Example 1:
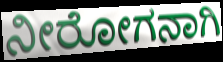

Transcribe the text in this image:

ನೀರೋಗನಾಗಿ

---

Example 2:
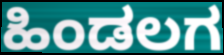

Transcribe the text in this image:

ಹಿಂಡಲಗ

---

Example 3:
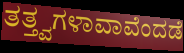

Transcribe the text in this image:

ತತ್ತ್ವಗಳಾವಾವೆಂದಡೆ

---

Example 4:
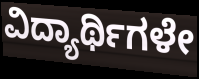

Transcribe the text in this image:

ವಿದ್ಯಾರ್ಥಿಗಳೇ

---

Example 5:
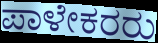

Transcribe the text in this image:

ಪಾಳೇಕರರು